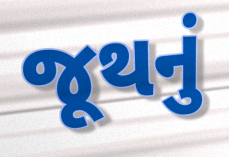
જૂથનું